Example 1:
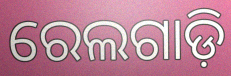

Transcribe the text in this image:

ରେଲଗାଡ଼ି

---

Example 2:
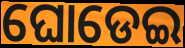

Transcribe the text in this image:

ଘୋଡେଇ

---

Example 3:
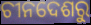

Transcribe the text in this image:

ଚୀନଦେଶରୁ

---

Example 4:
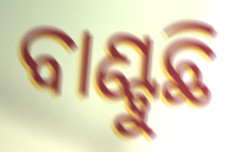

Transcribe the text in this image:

ବାଣ୍ଟୁଛି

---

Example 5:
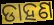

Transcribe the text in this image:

ଡାହଣ